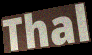
Thal